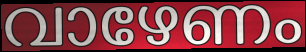
വാഴേണം